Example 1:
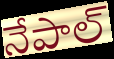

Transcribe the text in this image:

నేపాల్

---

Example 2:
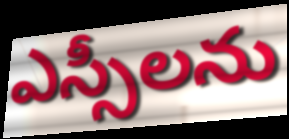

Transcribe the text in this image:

ఎస్సీలను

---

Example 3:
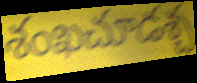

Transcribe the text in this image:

శంఖచూడశ్చ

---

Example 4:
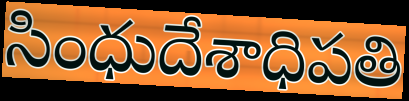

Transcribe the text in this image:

సింధుదేశాధిపతి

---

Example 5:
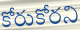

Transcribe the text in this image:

కోరుకోరని